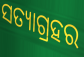
ସତ୍ୟାଗ୍ରହର